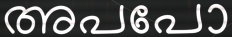
അപപോ